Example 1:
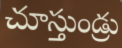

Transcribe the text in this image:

చూస్తుండ్రు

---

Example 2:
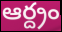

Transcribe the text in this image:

ఆర్ద్రం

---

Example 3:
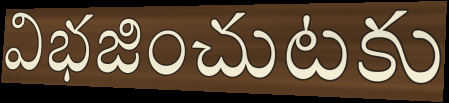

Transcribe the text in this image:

విభజించుటకు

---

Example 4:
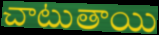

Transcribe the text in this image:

చాటుతాయి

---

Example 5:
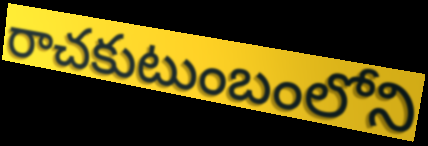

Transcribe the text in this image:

రాచకుటుంబంలోని